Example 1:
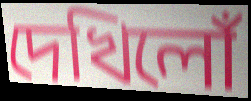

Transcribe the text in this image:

দেখিলোঁ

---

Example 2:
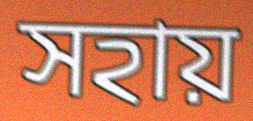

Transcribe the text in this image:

সহায়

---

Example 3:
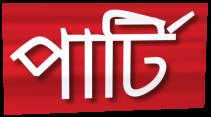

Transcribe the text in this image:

পাৰ্টি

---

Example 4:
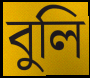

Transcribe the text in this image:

বুলি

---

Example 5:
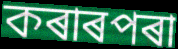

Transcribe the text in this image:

কৰাৰপৰা